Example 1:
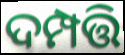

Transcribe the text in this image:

ଦମ୍ପତ୍ତି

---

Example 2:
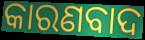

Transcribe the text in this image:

କାରଣବାଦ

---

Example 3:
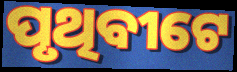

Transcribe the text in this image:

ପୃଥିବୀଟେ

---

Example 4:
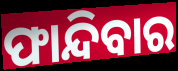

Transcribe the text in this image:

ଫାନ୍ଦିବାର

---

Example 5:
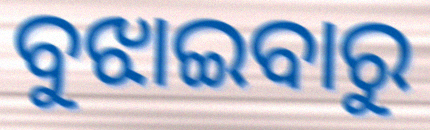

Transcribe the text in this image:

ବୁଝାଇବାରୁ